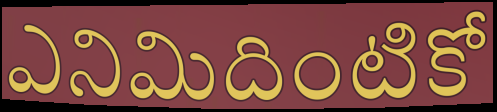
ఎనిమిదింటికో